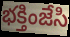
భక్తింజేసి